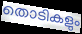
തൊടികളും